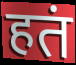
हतं